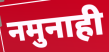
नमुनाही